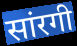
सांरगी